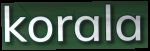
korala